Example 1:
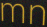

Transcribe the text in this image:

mn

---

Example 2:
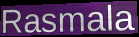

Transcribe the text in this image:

Rasmala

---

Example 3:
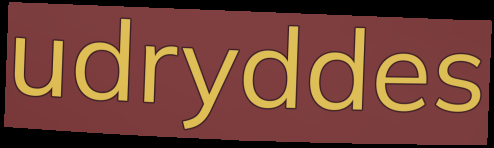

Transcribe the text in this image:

udryddes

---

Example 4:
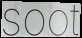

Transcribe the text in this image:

soot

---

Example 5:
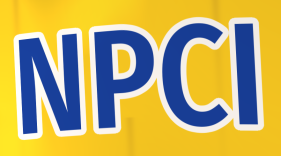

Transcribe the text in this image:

NPCI